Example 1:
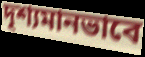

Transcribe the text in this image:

দৃশ্যমানভাবে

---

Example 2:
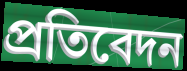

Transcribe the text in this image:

প্রতিবেদন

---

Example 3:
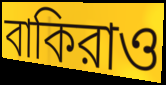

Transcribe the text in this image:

বাকিরাও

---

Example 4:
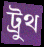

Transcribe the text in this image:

ট্রুথ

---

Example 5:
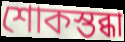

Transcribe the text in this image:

শোকস্তব্ধা